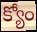
క్యోం